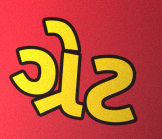
ગ્રેટ